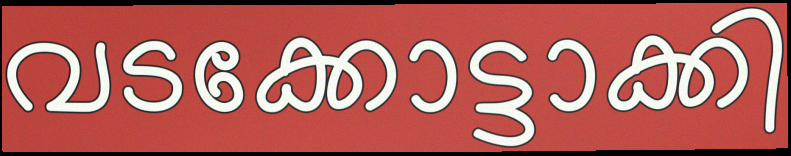
വടക്കോട്ടാക്കി